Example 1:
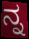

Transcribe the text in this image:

ನ್ನ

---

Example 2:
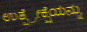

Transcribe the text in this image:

ಉತ್ಪ್ರೇಕ್ಷೆಯನ್ನು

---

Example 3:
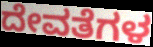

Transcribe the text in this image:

ದೇವತೆಗಳ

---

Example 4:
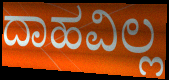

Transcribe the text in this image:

ದಾಹವಿಲ್ಲ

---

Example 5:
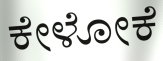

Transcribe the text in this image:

ಕೇಳೋಕೆ